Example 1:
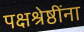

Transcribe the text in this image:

पक्षश्रेष्ठींना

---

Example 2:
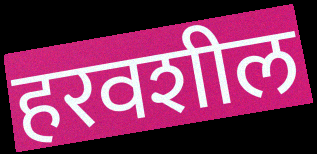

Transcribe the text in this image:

हरवशील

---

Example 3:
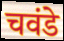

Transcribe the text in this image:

चवंडे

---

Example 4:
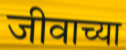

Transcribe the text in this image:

जीवाच्या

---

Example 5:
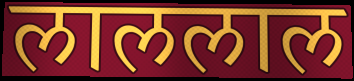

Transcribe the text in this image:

लाललाल